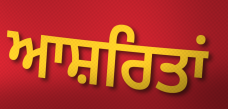
ਆਸ਼ਰਿਤਾਂ